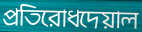
প্রতিরোধদেয়াল